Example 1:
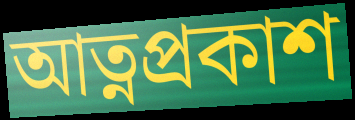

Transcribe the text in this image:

আত্নপ্রকাশ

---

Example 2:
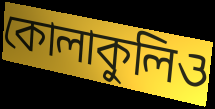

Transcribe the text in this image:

কোলাকুলিও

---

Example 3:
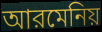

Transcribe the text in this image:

আরমেনিয়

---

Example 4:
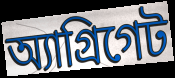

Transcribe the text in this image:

অ্যাগ্রিগেট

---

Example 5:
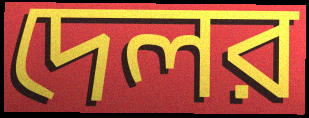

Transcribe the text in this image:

দেলর